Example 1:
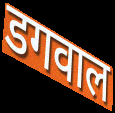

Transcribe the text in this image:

डगवाल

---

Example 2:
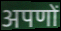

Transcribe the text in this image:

अपणों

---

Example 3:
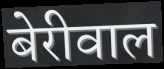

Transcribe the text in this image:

बेरीवाल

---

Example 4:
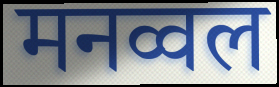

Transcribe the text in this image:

मनव्वल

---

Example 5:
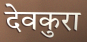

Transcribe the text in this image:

देवकुरा